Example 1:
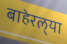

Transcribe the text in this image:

बाहेरल्या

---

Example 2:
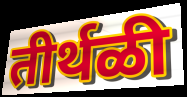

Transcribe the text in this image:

तीर्थळी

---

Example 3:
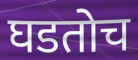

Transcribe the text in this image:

घडतोच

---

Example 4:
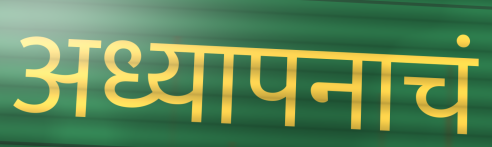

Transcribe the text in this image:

अध्यापनाचं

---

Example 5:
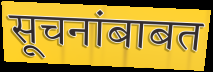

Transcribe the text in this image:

सूचनांबाबत